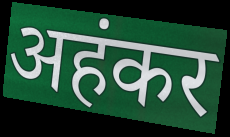
अहंकर